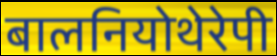
बालनियोथेरेपी